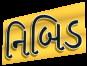
નિબિડ